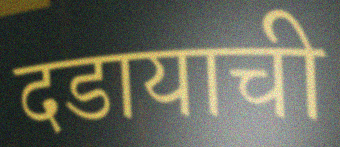
दडायाची